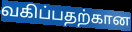
வகிப்பதற்கான